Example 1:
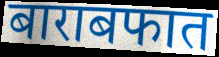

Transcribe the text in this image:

बाराबफात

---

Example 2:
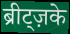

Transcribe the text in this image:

ब्रीट्ज़के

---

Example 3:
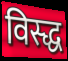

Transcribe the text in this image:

विस्द्ध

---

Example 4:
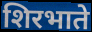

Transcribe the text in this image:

शिरभाते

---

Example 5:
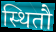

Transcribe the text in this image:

स्थितौ